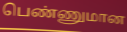
பெண்ணுமான